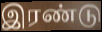
இரண்டு